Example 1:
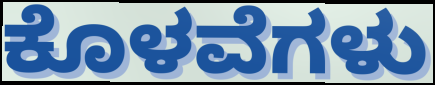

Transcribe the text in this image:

ಕೊಳವೆಗಳು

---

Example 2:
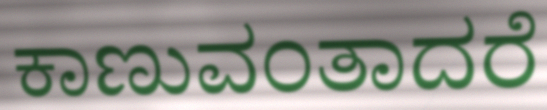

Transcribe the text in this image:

ಕಾಣುವಂತಾದರೆ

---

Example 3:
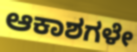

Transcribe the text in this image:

ಆಕಾಶಗಳೇ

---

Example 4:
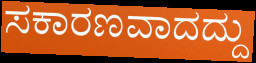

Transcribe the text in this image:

ಸಕಾರಣವಾದದ್ದು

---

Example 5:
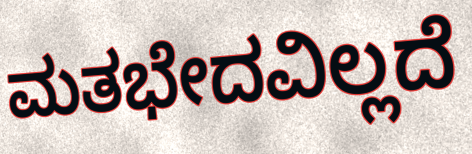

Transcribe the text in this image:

ಮತಭೇದವಿಲ್ಲದೆ